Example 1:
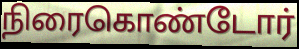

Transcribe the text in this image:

நிரைகொண்டோர்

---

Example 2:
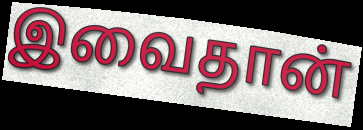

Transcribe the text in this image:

இவைதான்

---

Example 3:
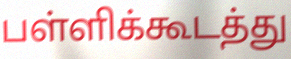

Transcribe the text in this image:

பள்ளிக்கூடத்து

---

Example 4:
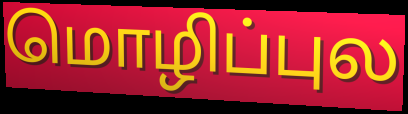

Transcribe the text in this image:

மொழிப்புல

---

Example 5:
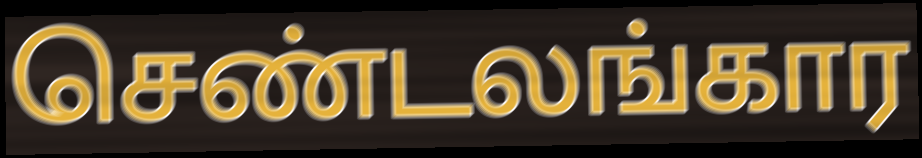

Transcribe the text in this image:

செண்டலங்கார